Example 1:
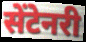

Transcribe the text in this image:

सेंटेनरी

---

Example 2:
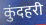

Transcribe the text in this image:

कुंदहरी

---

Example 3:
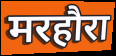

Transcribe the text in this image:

मरहौरा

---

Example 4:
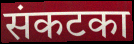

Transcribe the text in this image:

संकटका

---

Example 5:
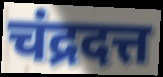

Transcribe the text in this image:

चंद्रदत्त